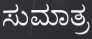
ಸುಮಾತ್ರ